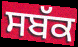
ਸਬੱਕ